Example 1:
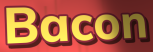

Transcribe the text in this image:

Bacon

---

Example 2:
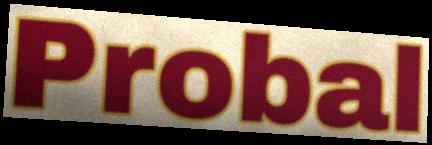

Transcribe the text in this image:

Probal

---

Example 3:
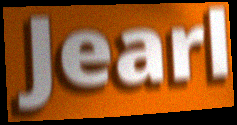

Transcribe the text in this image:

Jearl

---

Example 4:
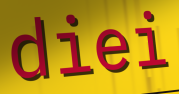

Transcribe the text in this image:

diei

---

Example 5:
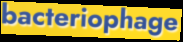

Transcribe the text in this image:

bacteriophage